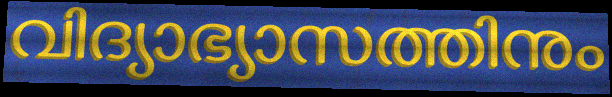
വിദ്യാഭ്യാസത്തിനും